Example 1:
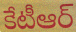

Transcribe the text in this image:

కేటీఆర్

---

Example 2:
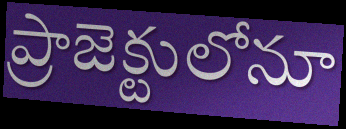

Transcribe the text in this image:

ప్రాజెక్టులోనూ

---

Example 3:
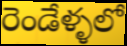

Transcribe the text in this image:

రెండేళ్ళలో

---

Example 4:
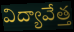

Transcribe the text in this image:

విద్యావేత్త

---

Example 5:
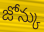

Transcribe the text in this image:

జోన్కు